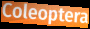
Coleoptera